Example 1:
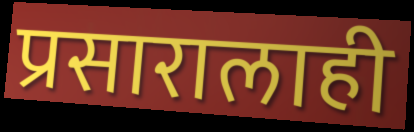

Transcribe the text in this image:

प्रसारालाही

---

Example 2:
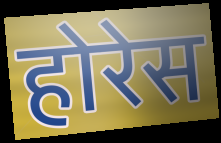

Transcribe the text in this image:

होरेस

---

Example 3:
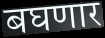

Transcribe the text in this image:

बघणार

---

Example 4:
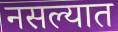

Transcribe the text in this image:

नसल्यात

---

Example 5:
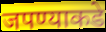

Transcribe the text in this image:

जपण्याकडे